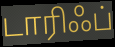
டாரிஃப்